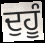
ਦੁਹੂੰ